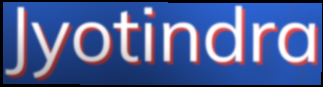
Jyotindra